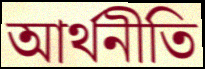
আর্থনীতি